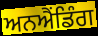
ਅਨਐਂਡਿੰਗ